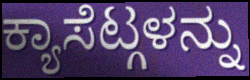
ಕ್ಯಾಸೆಟ್ಗಳನ್ನು